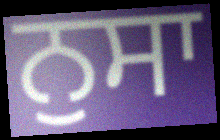
ਨੁਸਾ